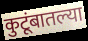
कुटूंबातल्या